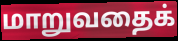
மாறுவதைக்